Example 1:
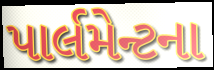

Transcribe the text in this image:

પાર્લમેન્ટના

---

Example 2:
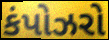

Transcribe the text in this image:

કંપોઝરો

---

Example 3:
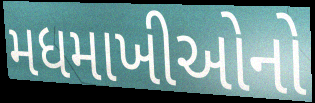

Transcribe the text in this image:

મધમાખીઓનો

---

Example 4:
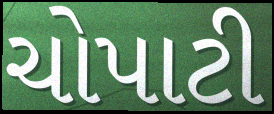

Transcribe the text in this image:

ચોપાટી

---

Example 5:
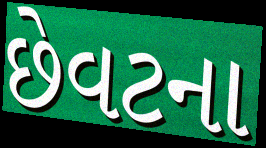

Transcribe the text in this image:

છેવટના